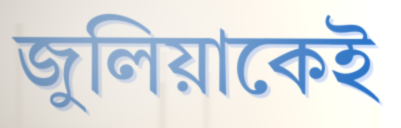
জুলিয়াকেই